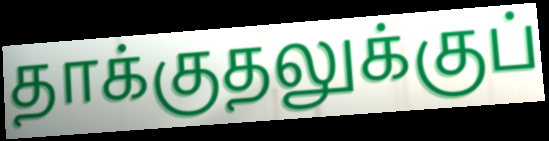
தாக்குதலுக்குப்